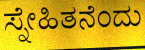
ಸ್ನೇಹಿತನೆಂದು